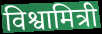
विश्वामित्री